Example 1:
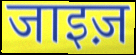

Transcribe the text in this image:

जाइज़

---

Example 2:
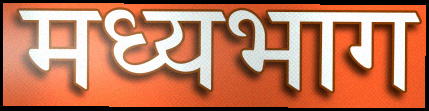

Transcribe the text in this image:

मध्यभाग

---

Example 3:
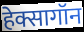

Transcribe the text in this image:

हेक्सागॉन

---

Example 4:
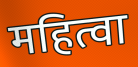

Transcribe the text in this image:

महित्वा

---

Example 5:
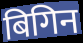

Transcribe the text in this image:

बिगिन